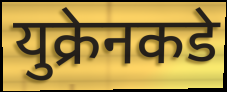
युक्रेनकडे